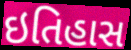
ઇતિહાસ